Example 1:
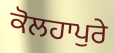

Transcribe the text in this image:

ਕੋਲਹਾਪੁਰੇ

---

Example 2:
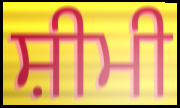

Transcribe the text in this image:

ਸ਼ੀਮੀ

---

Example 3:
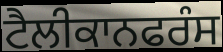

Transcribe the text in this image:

ਟੈਲੀਕਾਨਫਰੰਸ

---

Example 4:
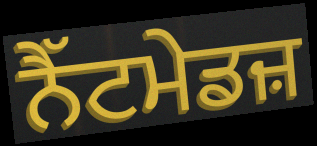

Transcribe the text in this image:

ਨੈੱਟਮੇਡਜ਼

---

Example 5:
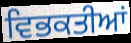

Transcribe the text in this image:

ਵਿਭਕਤੀਆਂ